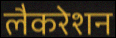
लैकरेशन